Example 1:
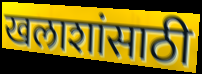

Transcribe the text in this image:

खलाशांसाठी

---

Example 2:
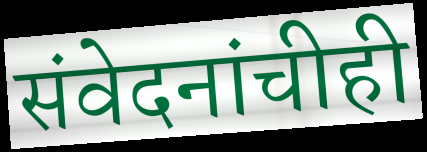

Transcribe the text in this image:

संवेदनांचीही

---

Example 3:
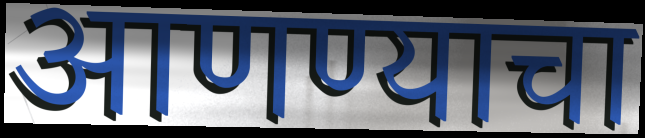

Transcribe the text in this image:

आणण्याचा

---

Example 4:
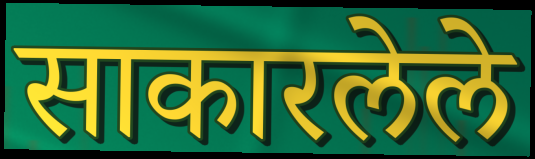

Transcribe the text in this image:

साकारलेले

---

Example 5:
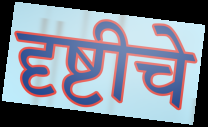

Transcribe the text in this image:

दृष्टीचे